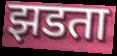
झडता